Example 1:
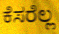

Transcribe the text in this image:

ಕೆಸರೆಲ್ಲ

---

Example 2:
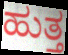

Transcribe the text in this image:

ಹುತ್ತ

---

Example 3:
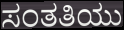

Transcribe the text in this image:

ಸಂತತಿಯು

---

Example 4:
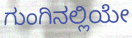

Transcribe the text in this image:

ಗುಂಗಿನಲ್ಲಿಯೇ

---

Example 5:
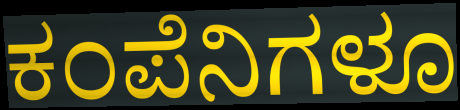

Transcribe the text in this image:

ಕಂಪೆನಿಗಳೂ